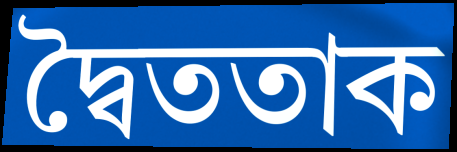
দ্বৈততাক